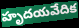
హృదయవేదిక